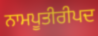
ਨਾਮਪੂਤੀਰੀਪਦ